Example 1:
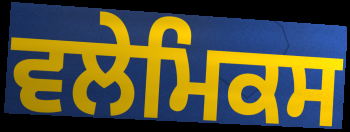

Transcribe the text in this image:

ਵਲੇਮਿਕਸ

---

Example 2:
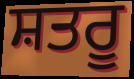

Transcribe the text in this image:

ਸ਼ਤਰੂ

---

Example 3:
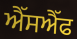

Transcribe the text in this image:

ਐੱਸਐੱਫ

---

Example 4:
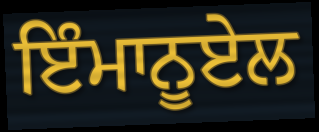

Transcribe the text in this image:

ਇੰਮਾਨੂਏਲ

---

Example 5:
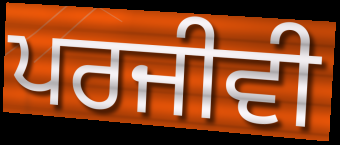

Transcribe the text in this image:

ਪਰਜੀਵੀ